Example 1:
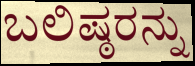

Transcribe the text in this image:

ಬಲಿಷ್ಠರನ್ನು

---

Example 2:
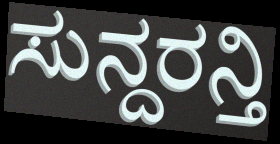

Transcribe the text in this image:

ಸುನ್ದರನ್ತಿ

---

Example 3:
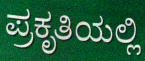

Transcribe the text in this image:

ಪ್ರಕೃತಿಯಲ್ಲಿ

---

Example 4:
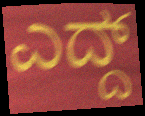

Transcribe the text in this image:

ಎದ್ದ್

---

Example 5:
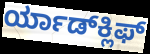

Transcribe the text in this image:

ರ್ಯಾಡ್‍ಕ್ಲಿಫ್